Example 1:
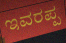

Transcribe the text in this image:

ಇವರಪ್ಪ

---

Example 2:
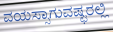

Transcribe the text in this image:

ವಯಸ್ಸಾಗುವಷ್ಟರಲ್ಲಿ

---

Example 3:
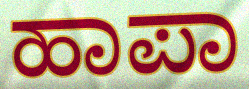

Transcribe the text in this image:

ಹಾಪಾ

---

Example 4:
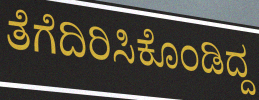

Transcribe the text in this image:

ತೆಗೆದಿರಿಸಿಕೊಂಡಿದ್ದ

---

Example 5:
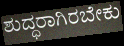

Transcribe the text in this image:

ಶುದ್ಧರಾಗಿರಬೇಕು